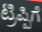
ಟ್ರಿಪ್ಪಿಗೆ